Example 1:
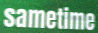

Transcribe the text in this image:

sametime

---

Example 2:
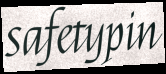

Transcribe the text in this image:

safetypin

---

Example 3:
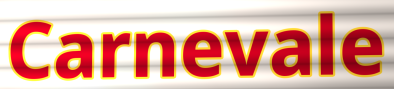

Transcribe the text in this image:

Carnevale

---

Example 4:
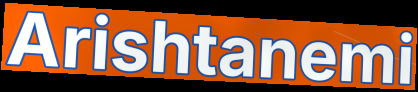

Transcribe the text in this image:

Arishtanemi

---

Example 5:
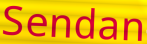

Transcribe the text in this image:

Sendan